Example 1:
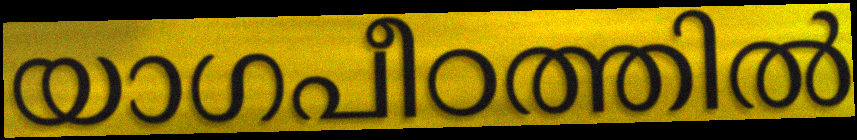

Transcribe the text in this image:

യാഗപീഠത്തിൽ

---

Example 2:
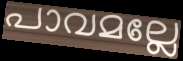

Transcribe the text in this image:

പാവമല്ലേ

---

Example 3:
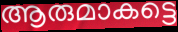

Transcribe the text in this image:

ആരുമാകട്ടെ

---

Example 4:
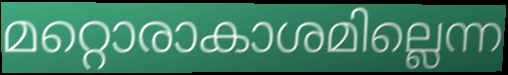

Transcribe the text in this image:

മറ്റൊരാകാശമില്ലെന്ന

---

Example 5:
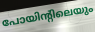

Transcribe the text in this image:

പോയിന്റിലെയും